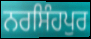
ਨਰਸਿੰਹਪੁਰ